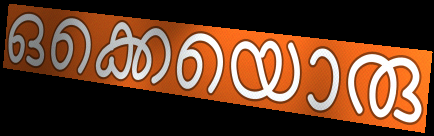
ഒക്കെയൊരു